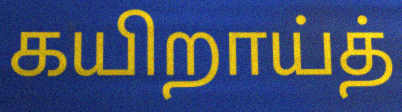
கயிறாய்த்